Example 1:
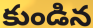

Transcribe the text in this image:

కుండిన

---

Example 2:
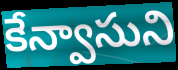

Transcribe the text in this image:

కేన్వాసుని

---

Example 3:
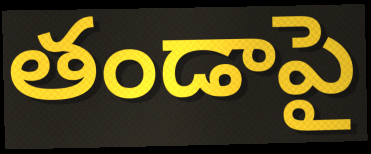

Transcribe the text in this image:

తండాపై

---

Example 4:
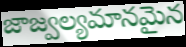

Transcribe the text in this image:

జాజ్వల్యమానమైన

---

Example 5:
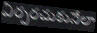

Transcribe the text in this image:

ఏర్పరచుకునేలా